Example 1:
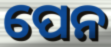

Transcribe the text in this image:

ପେନ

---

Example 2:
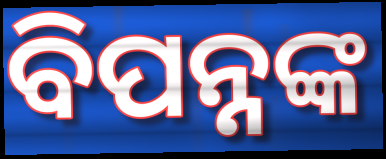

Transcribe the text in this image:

ବିପନ୍ନଙ୍କ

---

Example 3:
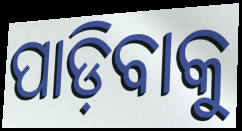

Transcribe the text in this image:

ପାଡ଼ିବାକୁ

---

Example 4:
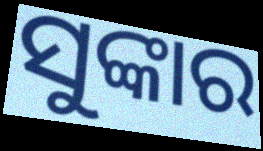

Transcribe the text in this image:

ସୁଙ୍କାର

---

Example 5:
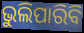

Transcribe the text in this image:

ଭୁଲିପାରିବି